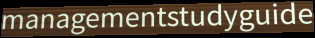
managementstudyguide